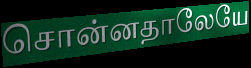
சொன்னதாலேயே